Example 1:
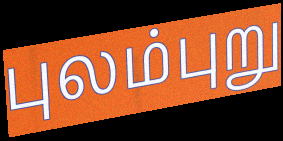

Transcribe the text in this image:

புலம்புறு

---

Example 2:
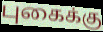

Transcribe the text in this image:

புகைக்கு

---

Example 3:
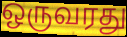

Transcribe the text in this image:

ஒருவரது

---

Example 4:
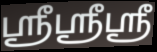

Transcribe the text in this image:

ஸ்ரீஸ்ரீஸ்ரீ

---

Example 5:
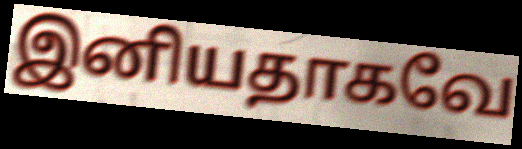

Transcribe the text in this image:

இனியதாகவே